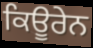
ਕਿਊਰੇਨ